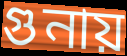
গুনায়